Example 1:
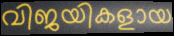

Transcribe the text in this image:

വിജയികളായ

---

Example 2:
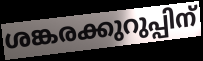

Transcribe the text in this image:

ശങ്കരക്കുറുപ്പിന്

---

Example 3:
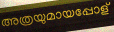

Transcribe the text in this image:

അത്രയുമായപ്പോള്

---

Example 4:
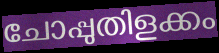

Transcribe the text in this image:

ചോപ്പുതിളക്കം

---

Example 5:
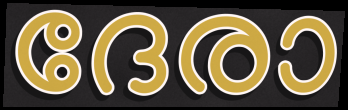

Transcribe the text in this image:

ദേരാ